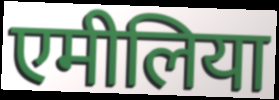
एमीलिया